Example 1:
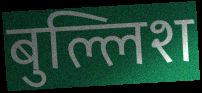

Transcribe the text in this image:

बुल्लिश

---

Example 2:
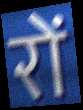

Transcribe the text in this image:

रों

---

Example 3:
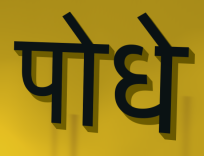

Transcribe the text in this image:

पोधे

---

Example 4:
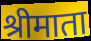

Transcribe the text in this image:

श्रीमाता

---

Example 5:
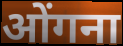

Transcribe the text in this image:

ओंगना